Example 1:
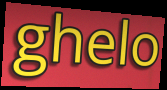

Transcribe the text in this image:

ghelo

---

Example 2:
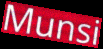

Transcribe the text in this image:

Munsi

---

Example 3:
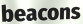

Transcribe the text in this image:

beacons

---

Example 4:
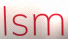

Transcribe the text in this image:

Ism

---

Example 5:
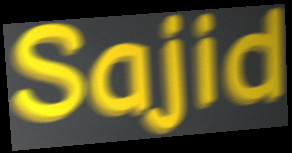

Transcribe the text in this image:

Sajid